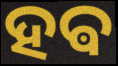
ହଵ